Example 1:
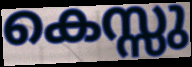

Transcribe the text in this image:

കെസ്സു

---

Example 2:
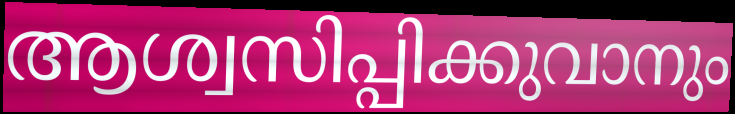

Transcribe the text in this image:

ആശ്വസിപ്പിക്കുവാനും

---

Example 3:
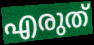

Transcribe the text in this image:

എരുത്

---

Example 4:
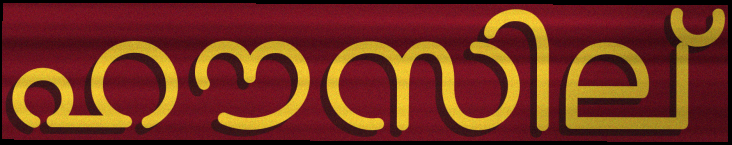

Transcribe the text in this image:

ഹൗസില്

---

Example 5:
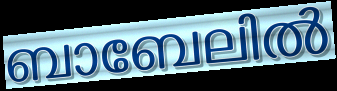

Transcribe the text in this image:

ബാബേലിൽ